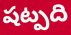
షట్పది